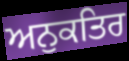
ਅਨੁਕਤਿਰ